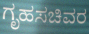
ಗೃಹಸಚಿವರ